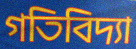
গতিবিদ্যা